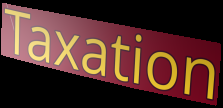
Taxation